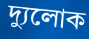
দ্যুলোক